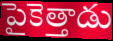
పైకెత్తాడు